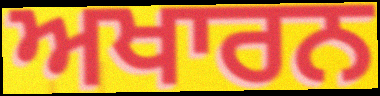
ਅਖਾਰਨ